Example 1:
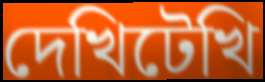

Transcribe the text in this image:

দেখিটেখি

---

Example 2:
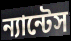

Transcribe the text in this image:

ন্যান্টেস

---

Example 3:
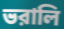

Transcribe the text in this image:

ভরালি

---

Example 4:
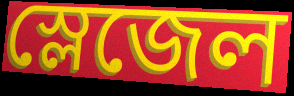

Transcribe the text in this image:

স্লেজেল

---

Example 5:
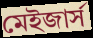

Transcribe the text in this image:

মেইজার্স